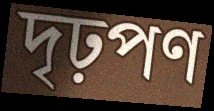
দৃঢ়পণ